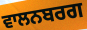
ਵਾਲਨਬਰਗ